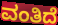
ವಂತಿದೆ